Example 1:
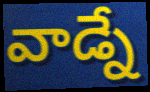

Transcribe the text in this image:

వాడ్నే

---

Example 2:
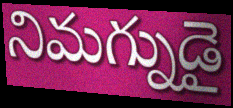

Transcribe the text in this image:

నిమగ్నుడై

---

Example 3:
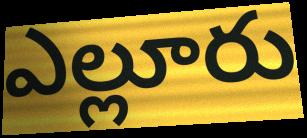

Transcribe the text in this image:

ఎల్లూరు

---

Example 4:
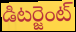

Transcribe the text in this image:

డిటర్జెంట్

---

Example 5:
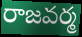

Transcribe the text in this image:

రాజవర్మ